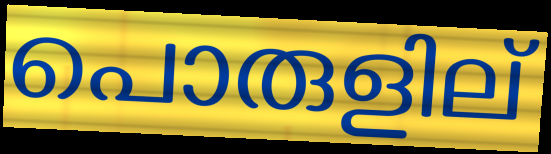
പൊരുളില്